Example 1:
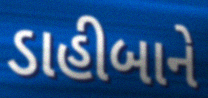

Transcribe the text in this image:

ડાહીબાને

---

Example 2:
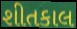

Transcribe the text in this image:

શીતકાલ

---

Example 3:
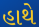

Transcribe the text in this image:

હાથે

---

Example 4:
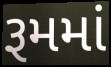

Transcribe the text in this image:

રૂમમાં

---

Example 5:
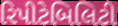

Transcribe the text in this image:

રિપીટેબિલિટી